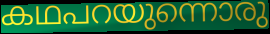
കഥപറയുന്നൊരു